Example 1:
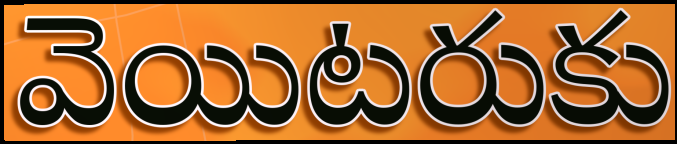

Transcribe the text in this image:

వెయిటరుకు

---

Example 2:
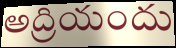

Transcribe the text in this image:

అద్రియందు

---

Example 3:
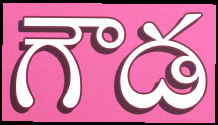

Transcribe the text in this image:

గౌడ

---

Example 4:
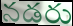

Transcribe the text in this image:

నడరు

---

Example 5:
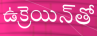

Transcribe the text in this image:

ఉక్రెయిన్‌తో